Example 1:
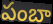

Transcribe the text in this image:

పంబా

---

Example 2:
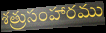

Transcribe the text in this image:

శత్రుసంహారము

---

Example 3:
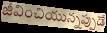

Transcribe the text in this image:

జీవించియున్నప్పుడే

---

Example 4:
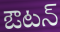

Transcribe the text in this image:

ఔటన్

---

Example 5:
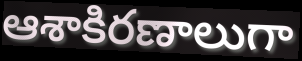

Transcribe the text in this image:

ఆశాకిరణాలుగా